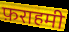
फ़राहमी